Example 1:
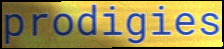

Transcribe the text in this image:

prodigies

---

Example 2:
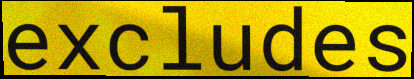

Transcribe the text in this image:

excludes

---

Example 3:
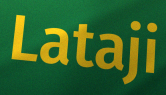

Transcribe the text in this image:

Lataji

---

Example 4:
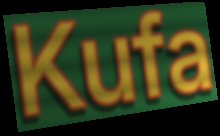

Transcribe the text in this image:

Kufa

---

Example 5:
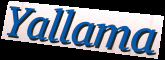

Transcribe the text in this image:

Yallama